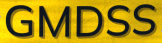
GMDSS